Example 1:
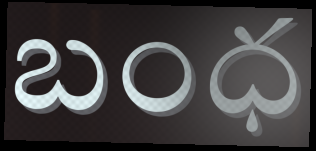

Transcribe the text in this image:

బంధ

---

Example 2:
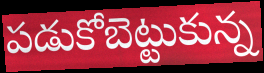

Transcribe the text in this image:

పడుకోబెట్టుకున్న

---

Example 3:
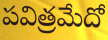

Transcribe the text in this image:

పవిత్రమేదో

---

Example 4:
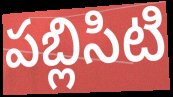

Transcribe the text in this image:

పబ్లిసిటి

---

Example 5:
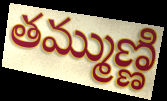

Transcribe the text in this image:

తమ్ముణ్ణి